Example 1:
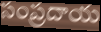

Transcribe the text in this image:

సంప్రదాయ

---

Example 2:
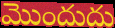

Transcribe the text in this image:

మొందుదు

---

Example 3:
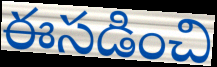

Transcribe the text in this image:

ఈసడించి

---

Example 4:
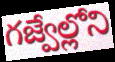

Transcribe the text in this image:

గజ్వేల్లోని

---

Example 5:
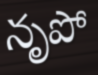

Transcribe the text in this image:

నృపో